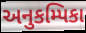
અનુકમ્પિકા